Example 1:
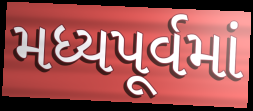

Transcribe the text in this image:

મધ્યપૂર્વમાં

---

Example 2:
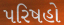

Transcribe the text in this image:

પરિષહો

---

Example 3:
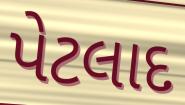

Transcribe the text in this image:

પેટલાદ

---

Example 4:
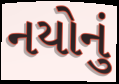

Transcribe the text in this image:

નયોનું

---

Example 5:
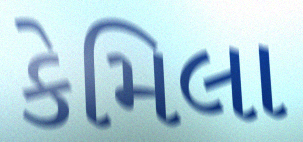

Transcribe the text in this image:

કેમિલા